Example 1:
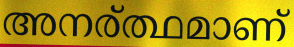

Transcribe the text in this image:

അനര്ത്ഥമാണ്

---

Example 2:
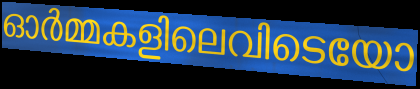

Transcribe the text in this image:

ഓർമ്മകളിലെവിടെയോ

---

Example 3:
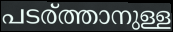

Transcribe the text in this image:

പടര്ത്താനുള്ള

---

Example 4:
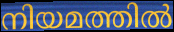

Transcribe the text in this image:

നിയമത്തിൽ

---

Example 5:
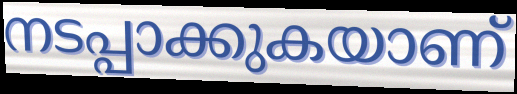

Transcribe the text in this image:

നടപ്പാക്കുകയാണ്